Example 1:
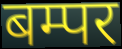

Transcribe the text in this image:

बम्पर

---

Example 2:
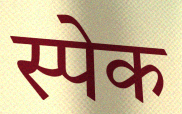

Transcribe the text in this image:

स्पेक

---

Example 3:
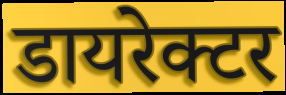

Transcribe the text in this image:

डायरेक्टर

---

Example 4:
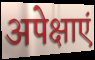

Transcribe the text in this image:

अपेक्षाएं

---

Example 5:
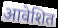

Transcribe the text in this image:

आवेशित